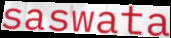
saswata